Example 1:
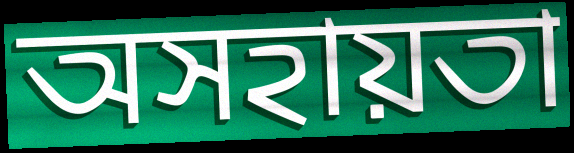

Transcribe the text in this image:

অসহায়তা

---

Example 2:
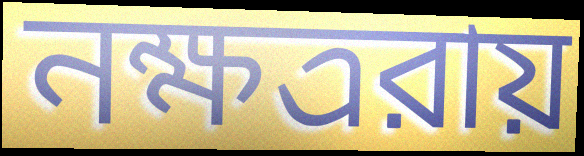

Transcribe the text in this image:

নক্ষত্ররায়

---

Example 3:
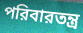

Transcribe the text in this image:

পরিবারতন্ত্র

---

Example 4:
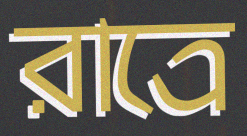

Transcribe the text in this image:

রাত্রে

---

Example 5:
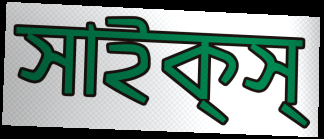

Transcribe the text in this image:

সাইক্‌স্